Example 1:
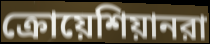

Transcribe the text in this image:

ক্রোয়েশিয়ানরা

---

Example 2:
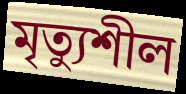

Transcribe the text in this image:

মৃত্যুশীল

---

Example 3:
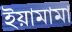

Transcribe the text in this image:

ইয়ামামা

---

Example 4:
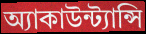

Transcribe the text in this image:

অ্যাকাউন্ট্যান্সি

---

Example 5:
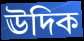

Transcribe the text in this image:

ঊদিক